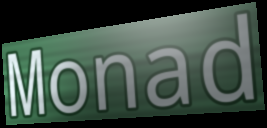
Monad